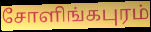
சோளிங்கபுரம்